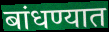
बांधण्यात